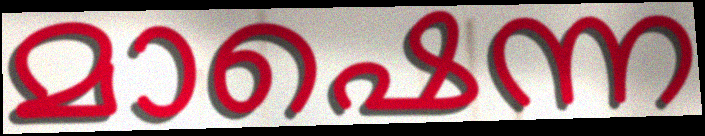
മാഷെന്ന